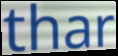
thar